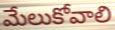
మేలుకోవాలి